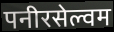
पनीरसेल्वम